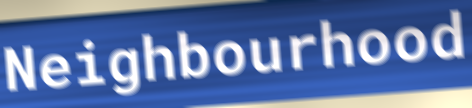
Neighbourhood